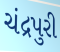
ચંદ્રપુરી